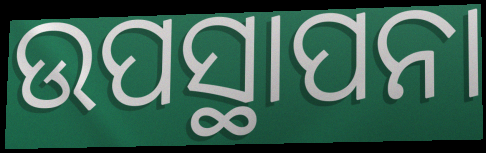
ଉପସ୍ଥାପନା